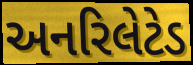
અનરિલેટેડ